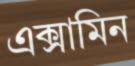
এক্সামিন